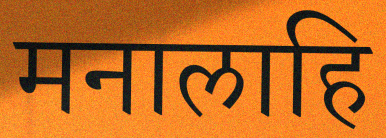
मनालाहि